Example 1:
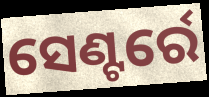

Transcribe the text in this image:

ସେଣ୍ଟର୍ରେ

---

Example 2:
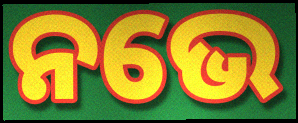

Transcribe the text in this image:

ନଭେ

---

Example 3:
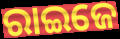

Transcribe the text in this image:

ରାଇଜେ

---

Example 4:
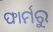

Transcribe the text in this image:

ଫାର୍ମରୁ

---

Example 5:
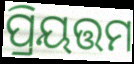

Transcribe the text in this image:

ପ୍ରିୟତ୍ତମ